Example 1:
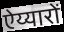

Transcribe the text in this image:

ऐय्यारों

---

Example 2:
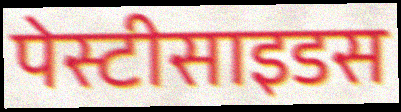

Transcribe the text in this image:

पेस्टीसाइडस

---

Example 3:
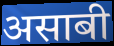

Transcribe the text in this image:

असाबी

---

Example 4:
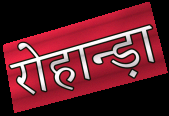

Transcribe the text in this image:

रोहान्ड़ा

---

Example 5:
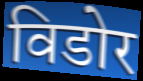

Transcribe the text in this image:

विडोर